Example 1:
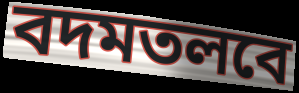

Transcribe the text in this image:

বদমতলবে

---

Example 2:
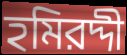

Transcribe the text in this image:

হমিরদ্দী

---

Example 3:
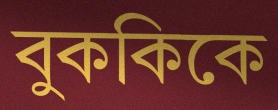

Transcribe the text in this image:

বুককিকে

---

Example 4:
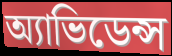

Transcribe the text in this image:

অ্যাভিডেন্স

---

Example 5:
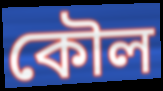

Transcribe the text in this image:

কৌল